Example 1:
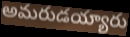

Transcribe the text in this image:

అమరుడయ్యారు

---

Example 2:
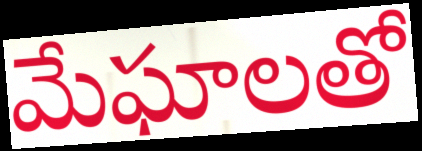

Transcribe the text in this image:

మేఘాలతో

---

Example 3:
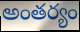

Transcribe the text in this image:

అంతర్యం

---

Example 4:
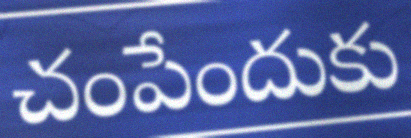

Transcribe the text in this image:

చంపేందుకు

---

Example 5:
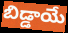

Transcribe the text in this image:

బిడ్డాయే